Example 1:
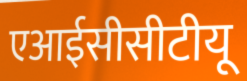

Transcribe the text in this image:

एआईसीसीटीयू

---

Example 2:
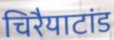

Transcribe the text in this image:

चिरैयाटांड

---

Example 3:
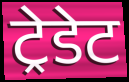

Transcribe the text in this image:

ट्रेडेट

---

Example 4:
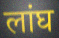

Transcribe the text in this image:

लांघ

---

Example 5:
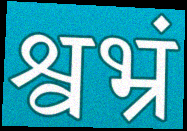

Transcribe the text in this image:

श्वभ्रं